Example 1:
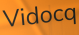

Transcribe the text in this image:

Vidocq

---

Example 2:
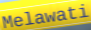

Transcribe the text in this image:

Melawati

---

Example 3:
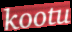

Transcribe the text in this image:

kootu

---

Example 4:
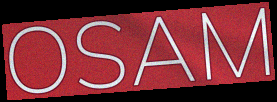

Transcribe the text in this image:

OSAM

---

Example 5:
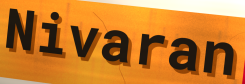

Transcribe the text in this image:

Nivaran